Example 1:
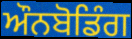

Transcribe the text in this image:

ਔਨਬੋਡਿੰਗ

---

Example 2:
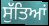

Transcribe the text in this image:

ਸੁੱਤਿਆਂ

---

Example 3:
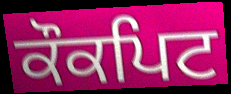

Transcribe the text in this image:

ਕੌਕਪਿਟ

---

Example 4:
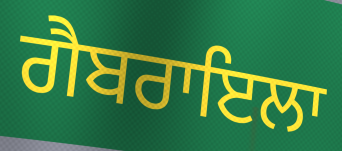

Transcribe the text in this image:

ਗੈਬਰਾਇਲਾ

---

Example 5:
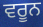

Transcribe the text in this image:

ਵਰੂਨ